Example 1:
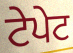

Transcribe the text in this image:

ਟੇਪੇਟ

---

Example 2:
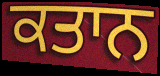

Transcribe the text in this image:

ਕਤਾਨ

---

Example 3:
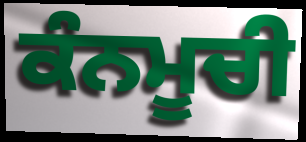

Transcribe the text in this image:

ਕੰਨਮੂਚੀ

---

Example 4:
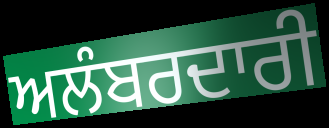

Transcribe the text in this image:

ਅਲੰਬਰਦਾਰੀ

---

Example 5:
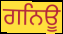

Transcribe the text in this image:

ਗਨਿਊ